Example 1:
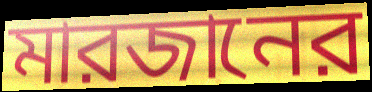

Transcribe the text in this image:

মারজানের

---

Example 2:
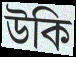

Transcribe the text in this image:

উকি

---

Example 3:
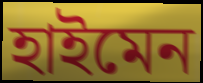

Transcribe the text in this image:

হাইমেন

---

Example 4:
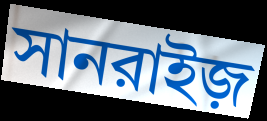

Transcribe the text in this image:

সানরাইজ়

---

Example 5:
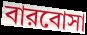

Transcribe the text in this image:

বারবোসা